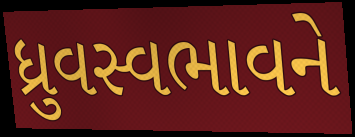
ધ્રુવસ્વભાવને